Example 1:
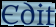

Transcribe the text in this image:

Edit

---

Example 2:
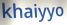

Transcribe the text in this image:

khaiyyo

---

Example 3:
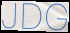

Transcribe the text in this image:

JDG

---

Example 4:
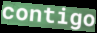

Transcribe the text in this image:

contigo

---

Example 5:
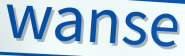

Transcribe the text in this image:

wanse